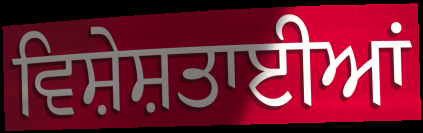
ਵਿਸ਼ੇਸ਼ਤਾਈਆਂ